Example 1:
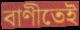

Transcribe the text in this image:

বাণীতেই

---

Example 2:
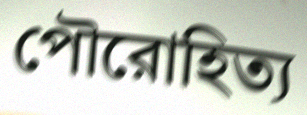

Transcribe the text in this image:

পৌরোহিত্য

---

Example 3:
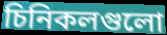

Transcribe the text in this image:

চিনিকলগুলো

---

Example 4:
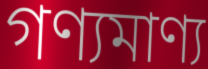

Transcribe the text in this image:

গণ্যমাণ্য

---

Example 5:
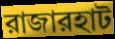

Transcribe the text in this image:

রাজারহাট